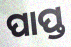
ପାପ୍ତ